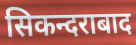
सिकन्दराबाद